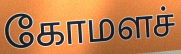
கோமளச்